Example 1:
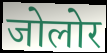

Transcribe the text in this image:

जोलोर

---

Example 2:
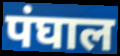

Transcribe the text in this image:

पंघाल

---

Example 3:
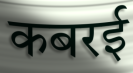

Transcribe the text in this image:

कबरई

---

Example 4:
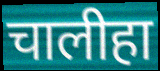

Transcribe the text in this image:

चालीहा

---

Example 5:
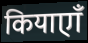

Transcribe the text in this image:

कियाएाँ